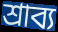
শ্রাব্য